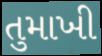
તુમાખી